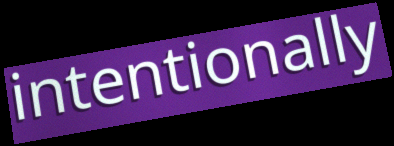
intentionally